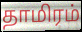
தாமிரம்